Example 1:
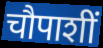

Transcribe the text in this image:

चौपाशीं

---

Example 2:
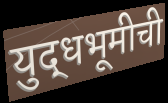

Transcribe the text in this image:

युद्धभूमीची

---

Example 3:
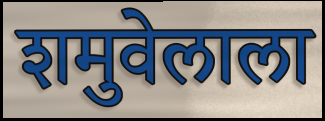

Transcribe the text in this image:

शमुवेलाला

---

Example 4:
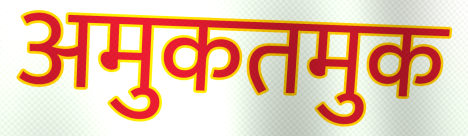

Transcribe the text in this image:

अमुकतमुक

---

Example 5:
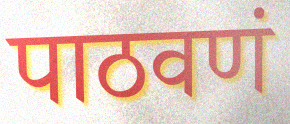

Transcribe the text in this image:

पाठवणं